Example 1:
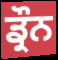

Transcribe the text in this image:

ਡ੍ਰੌਨ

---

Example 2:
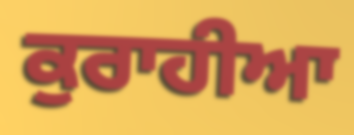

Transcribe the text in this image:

ਕੁਰਾਹੀਆ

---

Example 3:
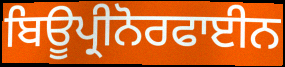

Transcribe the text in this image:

ਬਿਊਪ੍ਰੀਨੋਰਫਾਈਨ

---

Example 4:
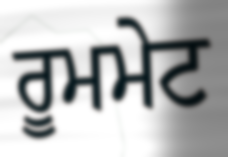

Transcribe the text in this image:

ਰੂਮਮੇਟ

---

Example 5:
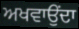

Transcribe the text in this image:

ਅਖਵਾਉਂਦਾ